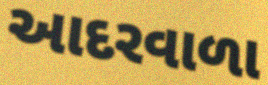
આદરવાળા